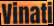
Vinati